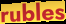
rubles